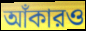
আঁকারও